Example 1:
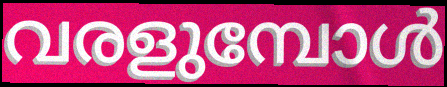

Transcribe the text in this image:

വരളുമ്പോൾ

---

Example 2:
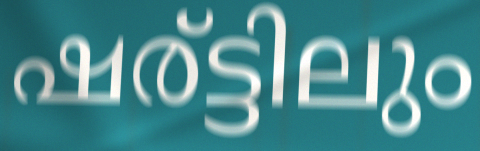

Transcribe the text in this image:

ഷര്ട്ടിലും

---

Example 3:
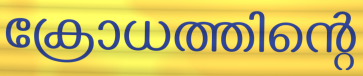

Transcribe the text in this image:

ക്രോധത്തിന്റെ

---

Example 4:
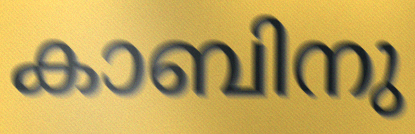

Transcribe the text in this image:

കാബിനു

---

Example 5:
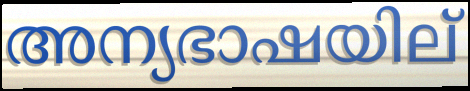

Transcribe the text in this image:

അന്യഭാഷയില്